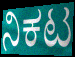
ನಿಕಟ